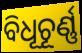
ବିଧୂଚୂର୍ଣ୍ଣ